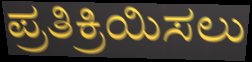
ಪ್ರತಿಕ್ರಿಯಿಸಲು